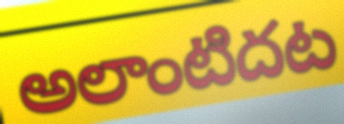
అలాంటిదట